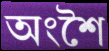
অংশৈ